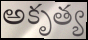
అకృత్య